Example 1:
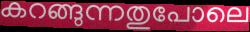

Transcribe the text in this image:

കറങ്ങുന്നതുപോലെ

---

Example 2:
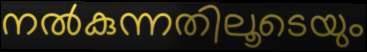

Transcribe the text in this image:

നൽകുന്നതിലൂടെയും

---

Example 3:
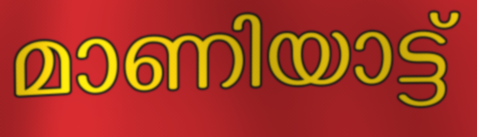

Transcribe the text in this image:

മാണിയാട്ട്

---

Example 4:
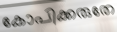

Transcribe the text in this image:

കോപിക്കരുതേ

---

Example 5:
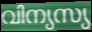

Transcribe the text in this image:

വിന്യസ്യ